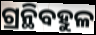
ଗ୍ରନ୍ଥିବହୁଳ